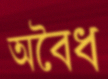
অবৈধ